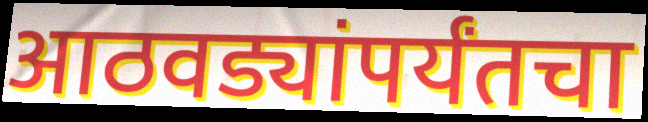
आठवड्यांपर्यंतचा